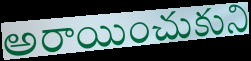
అరాయించుకుని